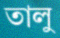
তালু